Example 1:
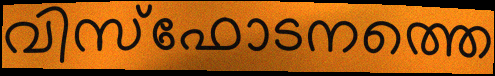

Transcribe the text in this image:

വിസ്ഫോടനത്തെ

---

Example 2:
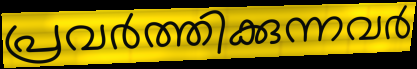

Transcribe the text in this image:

പ്രവർത്തിക്കുന്നവർ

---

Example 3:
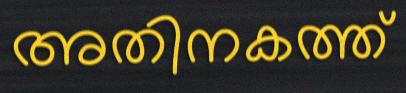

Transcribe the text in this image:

അതിനകത്ത്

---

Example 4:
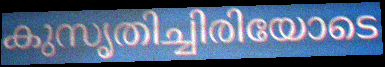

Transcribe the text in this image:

കുസൃതിച്ചിരിയോടെ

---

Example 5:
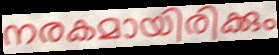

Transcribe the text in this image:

നരകമായിരിക്കും